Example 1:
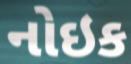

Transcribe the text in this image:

નોઇક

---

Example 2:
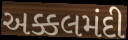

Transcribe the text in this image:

અક્કલમંદી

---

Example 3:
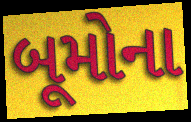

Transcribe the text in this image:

બૂમોના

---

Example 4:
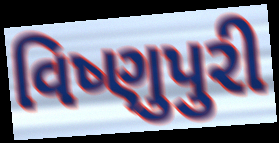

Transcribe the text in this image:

વિષ્ણુપુરી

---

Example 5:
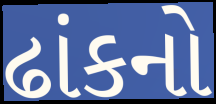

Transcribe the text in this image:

ઢાંકનો